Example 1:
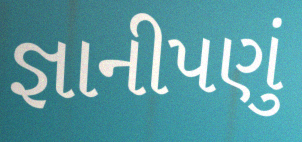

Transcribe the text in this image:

જ્ઞાનીપણું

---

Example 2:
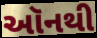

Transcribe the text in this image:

ઑનથી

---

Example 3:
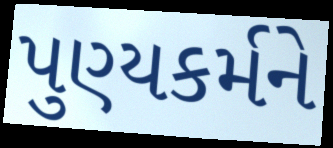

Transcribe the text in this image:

પુણ્યકર્મને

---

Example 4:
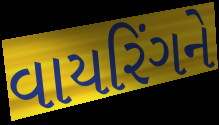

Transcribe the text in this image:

વાયરિંગને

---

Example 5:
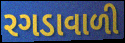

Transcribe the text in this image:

રગડાવાળી